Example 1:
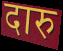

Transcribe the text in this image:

दारु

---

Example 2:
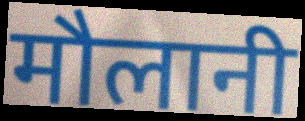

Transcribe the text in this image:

मौलानी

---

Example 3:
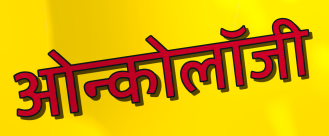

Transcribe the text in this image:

ओन्कोलॉजी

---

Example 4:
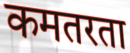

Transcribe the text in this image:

कमतरता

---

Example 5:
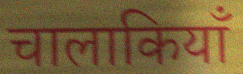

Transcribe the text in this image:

चालाकियाँ